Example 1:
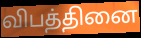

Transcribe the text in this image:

விபத்தினை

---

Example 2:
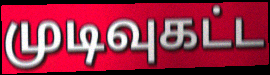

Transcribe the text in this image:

முடிவுகட்ட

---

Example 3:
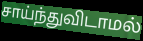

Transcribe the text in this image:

சாய்ந்துவிடாமல்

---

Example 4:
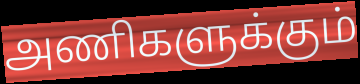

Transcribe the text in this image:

அணிகளுக்கும்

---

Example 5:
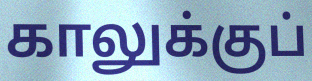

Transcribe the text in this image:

காலுக்குப்